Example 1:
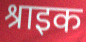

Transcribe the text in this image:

श्राइक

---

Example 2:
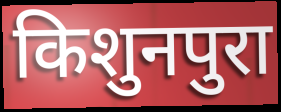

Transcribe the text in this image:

किशुनपुरा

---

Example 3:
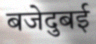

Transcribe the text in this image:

बजेदुबई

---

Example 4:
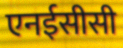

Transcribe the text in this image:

एनईसीसी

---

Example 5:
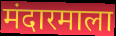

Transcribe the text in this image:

मंदारमाला